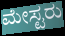
ಮೇಸ್ಟರು